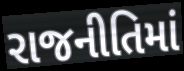
રાજનીતિમાં